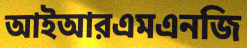
আইআরএমএনজি